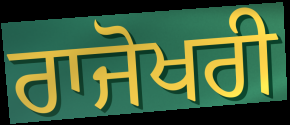
ਰਾਜੋਖਰੀ